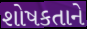
શોષકતાને